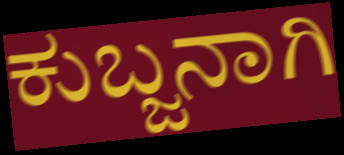
ಕುಬ್ಜನಾಗಿ